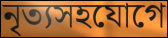
নৃত্যসহযোগে